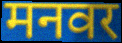
मनवर